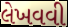
લેખવવી